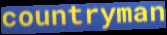
countryman